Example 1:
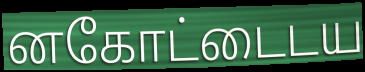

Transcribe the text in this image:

னகோட்டைடய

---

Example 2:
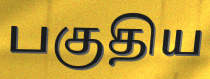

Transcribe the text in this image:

பகுதிய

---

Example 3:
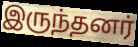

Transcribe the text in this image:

இருந்தனர்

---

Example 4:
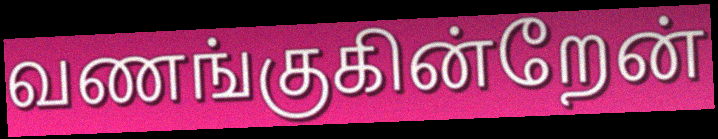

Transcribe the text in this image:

வணங்குகின்றேன்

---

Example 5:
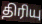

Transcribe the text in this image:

திரியு